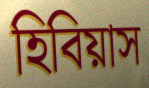
হিবিয়াস